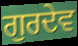
ਗੁਰਦੇਵ